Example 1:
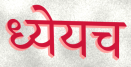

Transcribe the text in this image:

ध्येयच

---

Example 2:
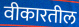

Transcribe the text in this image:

वीकारतील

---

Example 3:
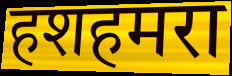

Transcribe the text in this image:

हशहमरा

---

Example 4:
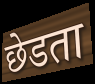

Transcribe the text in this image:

छेडता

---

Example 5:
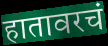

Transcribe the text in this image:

हातावरचं